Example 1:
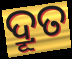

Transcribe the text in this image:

ଦ୍ରୂତ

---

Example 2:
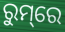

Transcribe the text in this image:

ରୁମ୍‌ରେ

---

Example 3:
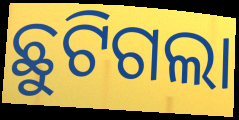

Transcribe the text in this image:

ଛୁଟିଗଲା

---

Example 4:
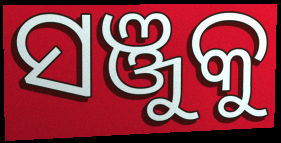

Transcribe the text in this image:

ସଞ୍ଜୁକୁ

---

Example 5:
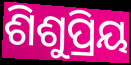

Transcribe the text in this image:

ଶିଶୁପ୍ରିୟ